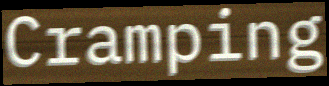
Cramping